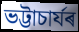
ভট্টাচাৰ্যৰ